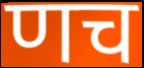
णच